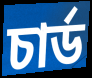
চার্ড